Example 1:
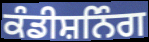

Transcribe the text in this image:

ਕੰਡੀਸ਼ਨਿੰਗ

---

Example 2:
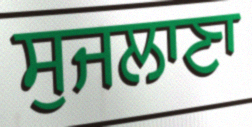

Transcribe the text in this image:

ਸੁਜਲਾਣਾ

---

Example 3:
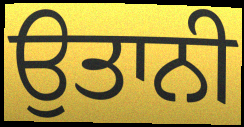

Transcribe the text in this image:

ਉਤਾਨੀ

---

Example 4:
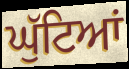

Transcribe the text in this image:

ਘੁੱਟਿਆਂ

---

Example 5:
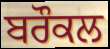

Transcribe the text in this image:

ਬਰੌਕਲ